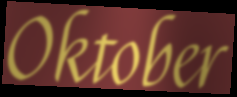
Oktober